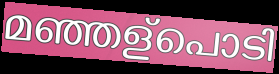
മഞ്ഞള്പൊടി